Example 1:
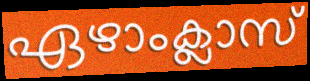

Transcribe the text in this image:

ഏഴാംക്ലാസ്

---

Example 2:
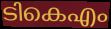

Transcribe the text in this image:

ടികെഎം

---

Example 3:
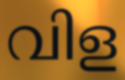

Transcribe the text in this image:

വിള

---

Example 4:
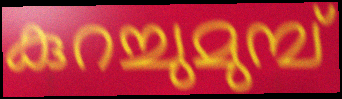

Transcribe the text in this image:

കുറച്ചുമുമ്പ്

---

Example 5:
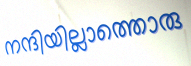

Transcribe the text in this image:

നന്ദിയില്ലാത്തൊരു